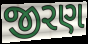
જીરણ